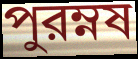
পুরম্নষ